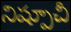
నిష్పూచీ